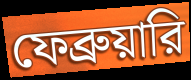
ফেব্রুয়ারি